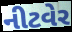
નીટવેર